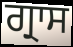
ਗ੍ਰਾਸ